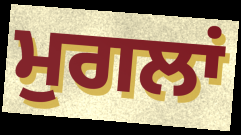
ਮੁਗਲਾਂ